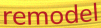
remodel